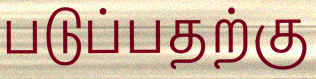
படுப்பதற்கு